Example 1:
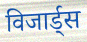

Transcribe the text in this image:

विजार्ड्स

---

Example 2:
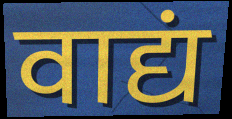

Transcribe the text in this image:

वाद्यं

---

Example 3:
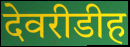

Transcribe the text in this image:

देवरीडीह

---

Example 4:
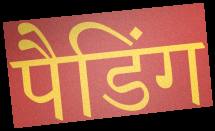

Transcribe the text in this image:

पैडिंग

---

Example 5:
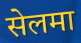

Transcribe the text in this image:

सेलमा